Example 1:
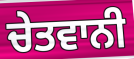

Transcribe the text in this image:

ਚੇਤਵਾਨੀ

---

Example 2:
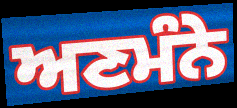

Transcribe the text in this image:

ਅਣਮੰਨੇ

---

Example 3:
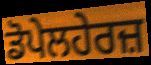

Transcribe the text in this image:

ਡੋਪੇਲਹੇਰਜ਼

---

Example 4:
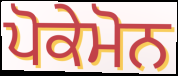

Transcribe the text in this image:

ਪੋਕੇਮੋਨ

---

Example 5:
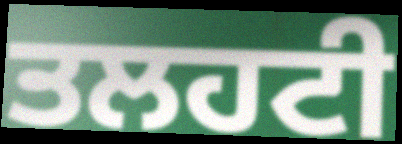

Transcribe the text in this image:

ਤਲਹਟੀ